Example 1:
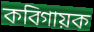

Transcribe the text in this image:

কবিগায়ক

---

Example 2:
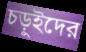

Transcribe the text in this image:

চড়ুইদের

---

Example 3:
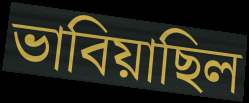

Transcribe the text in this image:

ভাবিয়াছিল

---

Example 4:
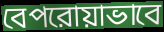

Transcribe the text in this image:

বেপরোয়াভাবে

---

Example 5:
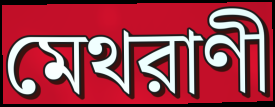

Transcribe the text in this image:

মেথরাণী